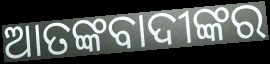
ଆତଙ୍କବାଦୀଙ୍କର